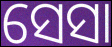
ସେସା